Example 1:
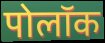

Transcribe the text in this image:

पोलॉक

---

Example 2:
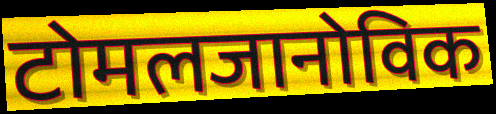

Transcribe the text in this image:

टोमलजानोविक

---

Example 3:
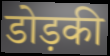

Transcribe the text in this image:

डोड़की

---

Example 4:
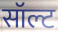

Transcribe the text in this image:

सॉल्‍ट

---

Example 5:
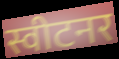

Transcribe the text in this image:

स्वीटनर